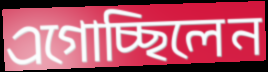
এগোচ্ছিলেন